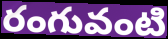
రంగువంటి